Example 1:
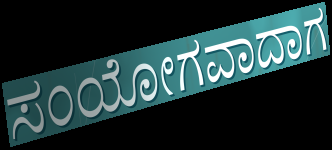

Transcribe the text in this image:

ಸಂಯೋಗವಾದಾಗ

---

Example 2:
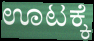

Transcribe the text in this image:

ಊಟಕ್ಕೆ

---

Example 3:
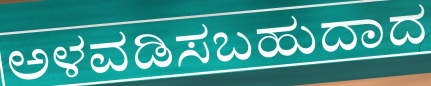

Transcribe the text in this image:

ಅಳವಡಿಸಬಹುದಾದ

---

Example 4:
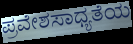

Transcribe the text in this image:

ಪ್ರವೇಶಸಾಧ್ಯತೆಯ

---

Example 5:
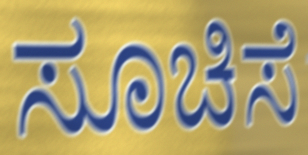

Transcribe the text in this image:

ಸೂಚಿಸೆ